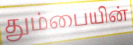
தும்பையின்